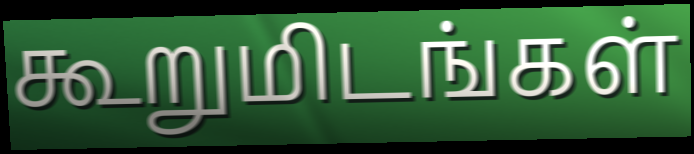
கூறுமிடங்கள்